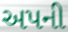
અપની